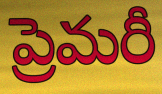
ప్రెమరీ